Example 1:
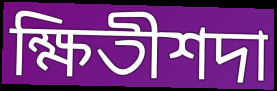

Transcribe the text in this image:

ক্ষিতীশদা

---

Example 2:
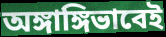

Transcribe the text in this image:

অঙ্গাঙ্গিভাবেই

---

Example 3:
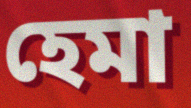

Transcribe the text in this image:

হেমা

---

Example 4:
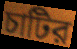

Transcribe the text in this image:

চাটির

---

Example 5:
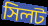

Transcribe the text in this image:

সিলট